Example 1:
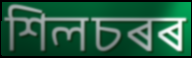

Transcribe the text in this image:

শিলচৰৰ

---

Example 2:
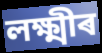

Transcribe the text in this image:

লক্ষ্মীৰ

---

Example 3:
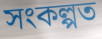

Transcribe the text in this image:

সংকল্পত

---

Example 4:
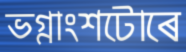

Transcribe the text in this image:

ভগ্নাংশটোৰে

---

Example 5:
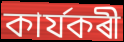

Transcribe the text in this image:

কাৰ্যকৰী